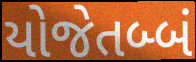
યોજેતબ્બં